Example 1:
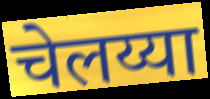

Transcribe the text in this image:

चेलय्या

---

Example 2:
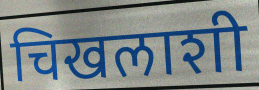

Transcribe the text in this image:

चिखलाशी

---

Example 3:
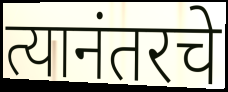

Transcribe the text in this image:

त्यानंतरचे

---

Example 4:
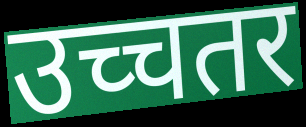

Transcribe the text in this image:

उच्चतर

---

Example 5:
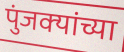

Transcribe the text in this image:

पुंजक्यांच्या